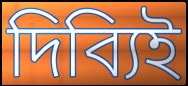
দিব্যিই